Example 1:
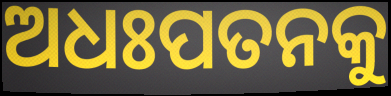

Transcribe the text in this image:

ଅଧଃପତନକୁ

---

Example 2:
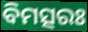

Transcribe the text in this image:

ବିମତ୍ସରଃ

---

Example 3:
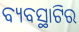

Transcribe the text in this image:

ବ୍ୟବସ୍ଥାଟିର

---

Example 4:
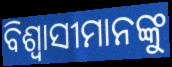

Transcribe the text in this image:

ବିଶ୍ୱାସୀମାନଙ୍କୁ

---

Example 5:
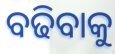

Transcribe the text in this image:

ବଢିବାକୁ